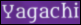
Yagachi